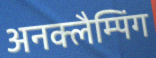
अनक्लैम्पिंग